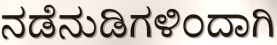
ನಡೆನುಡಿಗಳಿಂದಾಗಿ